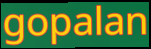
gopalan